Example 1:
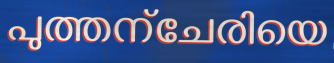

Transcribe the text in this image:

പുത്തന്ചേരിയെ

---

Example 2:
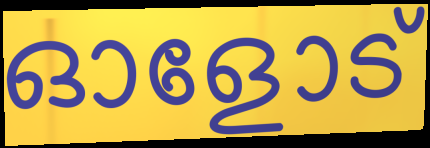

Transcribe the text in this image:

ഓളോട്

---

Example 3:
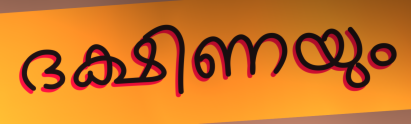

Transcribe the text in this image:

ദക്ഷിണയും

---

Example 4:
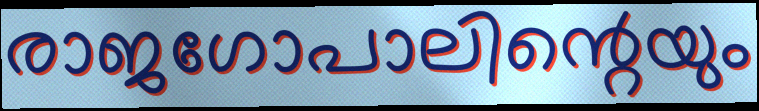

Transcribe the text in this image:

രാജഗോപാലിന്റെയും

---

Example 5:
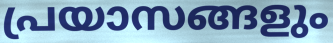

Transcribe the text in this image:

പ്രയാസങ്ങളും